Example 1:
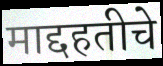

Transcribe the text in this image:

माद्दहतीचे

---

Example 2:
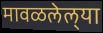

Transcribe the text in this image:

मावळलेल्या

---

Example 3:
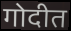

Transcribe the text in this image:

गोदीत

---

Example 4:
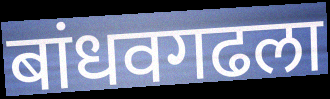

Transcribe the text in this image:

बांधवगढला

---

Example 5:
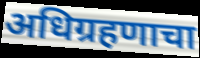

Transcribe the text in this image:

अधिग्रहणाचा